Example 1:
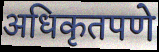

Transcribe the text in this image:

अधिकृतपणे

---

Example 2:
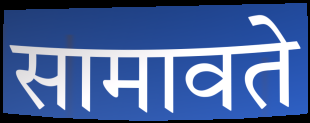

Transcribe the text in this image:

सामावते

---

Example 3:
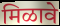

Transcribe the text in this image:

मिळावे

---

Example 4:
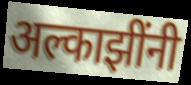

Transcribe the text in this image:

अल्काझींनी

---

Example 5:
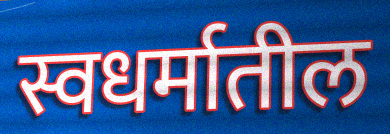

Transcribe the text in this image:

स्वधर्मातील